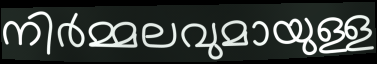
നിർമ്മലവുമായുള്ള